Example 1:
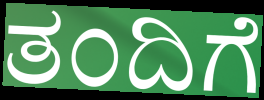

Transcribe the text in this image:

ತಂದಿಗೆ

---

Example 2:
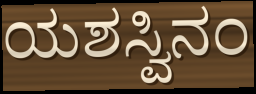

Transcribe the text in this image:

ಯಶಸ್ವಿನಂ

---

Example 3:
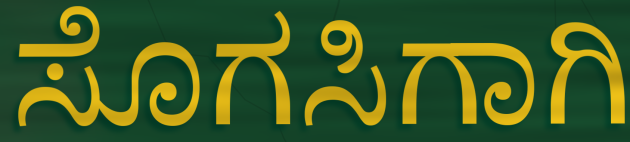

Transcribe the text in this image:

ಸೊಗಸಿಗಾಗಿ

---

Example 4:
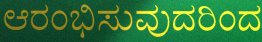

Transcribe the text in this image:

ಆರಂಭಿಸುವುದರಿಂದ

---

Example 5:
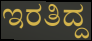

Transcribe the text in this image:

ಇರತಿದ್ದ